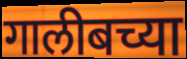
गालीबच्या